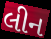
લીન